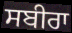
ਸਬੀਰਾ